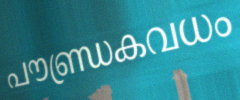
പൗണ്ഡ്രകവധം